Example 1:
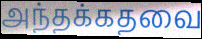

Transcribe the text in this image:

அந்தக்கதவை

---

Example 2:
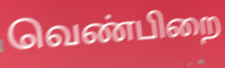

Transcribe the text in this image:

வெண்பிறை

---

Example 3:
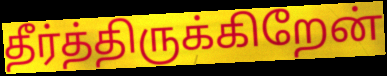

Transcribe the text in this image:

தீர்த்திருக்கிறேன்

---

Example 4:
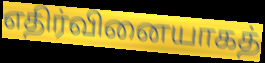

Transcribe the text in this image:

எதிர்வினையாகத்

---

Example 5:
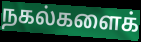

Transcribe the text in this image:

நகல்களைக்